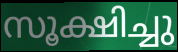
സൂക്ഷിച്ചു